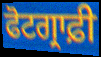
ਫੋਟਗ੍ਰਾਫ਼ੀ